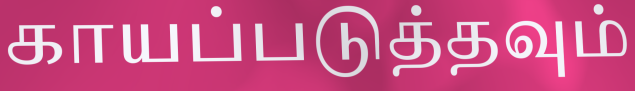
காயப்படுத்தவும்